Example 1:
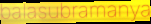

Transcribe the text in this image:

balasubramanya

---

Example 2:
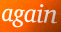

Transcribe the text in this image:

again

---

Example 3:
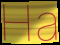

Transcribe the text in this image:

Ha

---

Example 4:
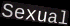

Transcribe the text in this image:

Sexual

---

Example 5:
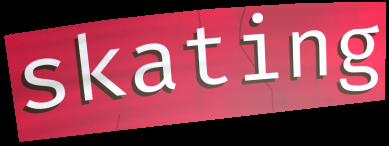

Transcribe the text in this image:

skating